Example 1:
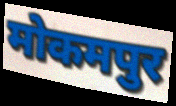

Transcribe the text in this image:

मोकमपुर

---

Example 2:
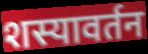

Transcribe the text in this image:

शस्यावर्तन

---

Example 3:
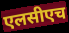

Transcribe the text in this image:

एलसीएच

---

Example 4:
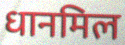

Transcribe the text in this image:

धानमिल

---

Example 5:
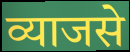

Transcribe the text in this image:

व्याजसे